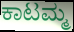
ಕಾಟಮ್ಮ